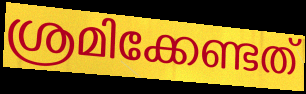
ശ്രമിക്കേണ്ടത്